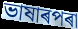
ভাষাৰপৰা